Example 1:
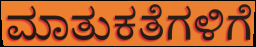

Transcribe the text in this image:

ಮಾತುಕತೆಗಳಿಗೆ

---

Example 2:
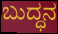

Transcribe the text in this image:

ಬುದ್ಧನ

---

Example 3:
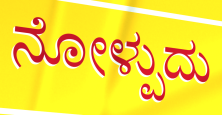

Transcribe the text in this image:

ನೋಳ್ಪುದು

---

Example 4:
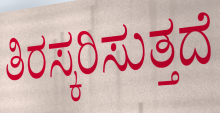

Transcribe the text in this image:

ತಿರಸ್ಕರಿಸುತ್ತದೆ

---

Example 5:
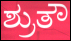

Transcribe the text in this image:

ಶ್ರುತೌ